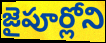
జైపూర్లోని